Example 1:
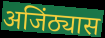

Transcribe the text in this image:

अजिंठ्यास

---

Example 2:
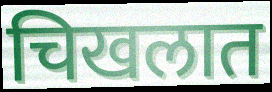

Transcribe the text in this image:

चिखलात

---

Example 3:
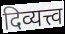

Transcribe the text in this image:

दिव्यत्त्व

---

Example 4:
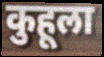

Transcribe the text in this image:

कुहूला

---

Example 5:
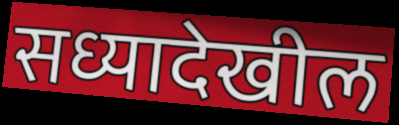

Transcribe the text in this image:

सध्यादेखील